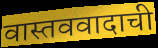
वास्तववादाची